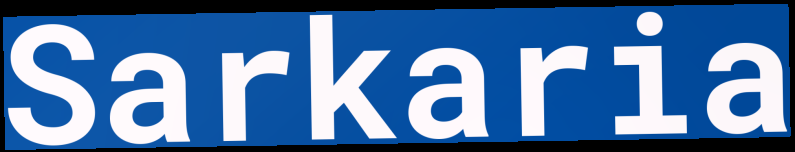
Sarkaria